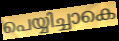
പെയ്യിച്ചാകെ